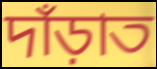
দাঁড়াত